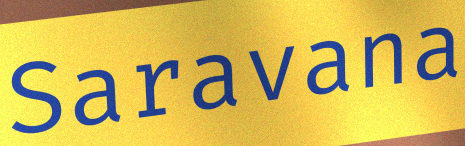
Saravana